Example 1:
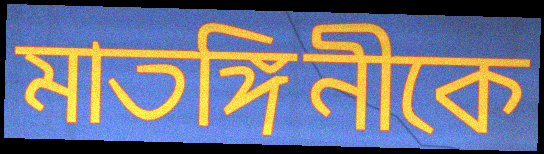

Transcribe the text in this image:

মাতঙ্গিনীকে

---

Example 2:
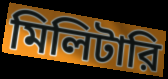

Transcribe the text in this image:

মিলিটারি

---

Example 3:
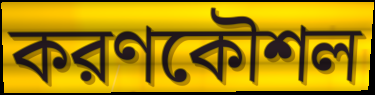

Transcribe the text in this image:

করণকৌশল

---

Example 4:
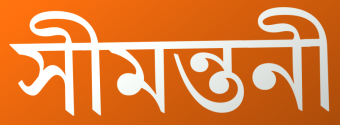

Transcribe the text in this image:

সীমন্তনী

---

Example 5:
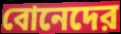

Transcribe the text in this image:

বোনেদের